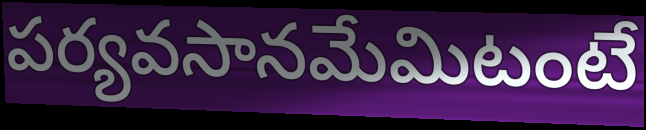
పర్యవసానమేమిటంటే